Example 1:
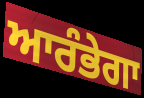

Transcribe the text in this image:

ਆਰੰਭੇਗਾ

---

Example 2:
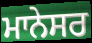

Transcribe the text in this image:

ਮਾਨੇਸਰ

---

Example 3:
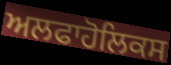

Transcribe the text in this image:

ਅਲਫਾਹੋਲਿਕਸ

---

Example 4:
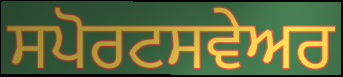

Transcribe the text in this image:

ਸਪੋਰਟਸਵੇਅਰ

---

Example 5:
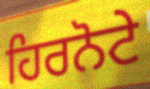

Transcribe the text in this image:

ਹਿਰਨੋਟੇ